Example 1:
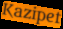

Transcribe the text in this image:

Kazipet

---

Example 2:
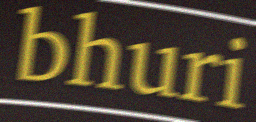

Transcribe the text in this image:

bhuri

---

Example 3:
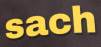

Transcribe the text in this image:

sach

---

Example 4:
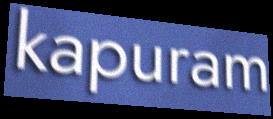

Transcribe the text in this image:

kapuram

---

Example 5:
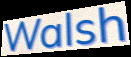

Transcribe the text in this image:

Walsh